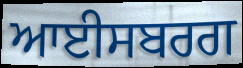
ਆਈਸਬਰਗ